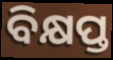
ବିକ୍ଷପ୍ତ